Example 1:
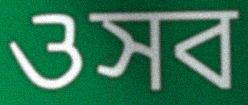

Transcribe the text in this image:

ওসব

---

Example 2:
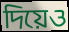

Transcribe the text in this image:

দিয়েও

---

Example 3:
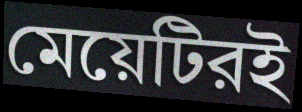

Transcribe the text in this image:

মেয়েটিরই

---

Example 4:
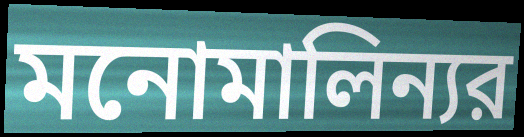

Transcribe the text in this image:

মনোমালিন্যর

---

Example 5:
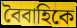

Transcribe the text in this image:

বৈবাহিকে